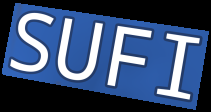
SUFI